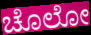
ಚೊಲೋ